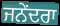
ਜਨੇਂਦਰਾ